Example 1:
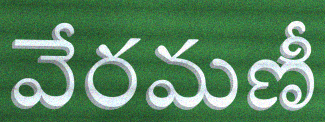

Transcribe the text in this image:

వేరమణీ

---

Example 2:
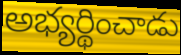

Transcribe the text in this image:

అభ్యర్థించాడు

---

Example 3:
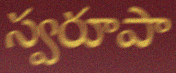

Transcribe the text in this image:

స్వరూపా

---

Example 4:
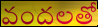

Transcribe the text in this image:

వందలతో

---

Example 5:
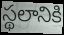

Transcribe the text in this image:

స్థలానికి